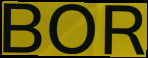
BOR